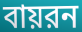
বায়রন